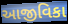
આજીવિકા